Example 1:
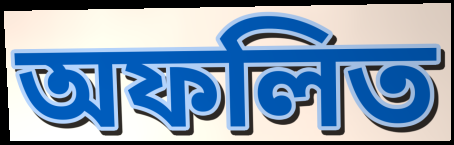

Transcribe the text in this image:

অফলিত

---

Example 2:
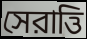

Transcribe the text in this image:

সেরাত্তি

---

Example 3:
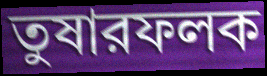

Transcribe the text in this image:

তুষারফলক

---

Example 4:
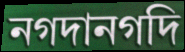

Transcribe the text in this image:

নগদানগদি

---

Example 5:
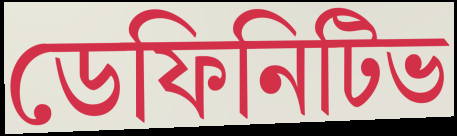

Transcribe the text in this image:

ডেফিনিটিভ